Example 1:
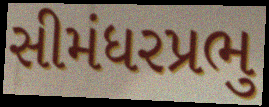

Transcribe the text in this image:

સીમંધરપ્રભુ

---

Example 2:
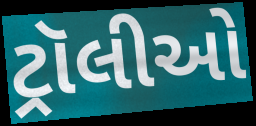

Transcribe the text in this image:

ટ્રૉલીઓ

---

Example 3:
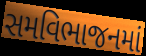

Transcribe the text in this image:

સમવિભાજનમાં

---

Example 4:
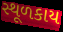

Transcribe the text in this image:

સ્થૂળકાય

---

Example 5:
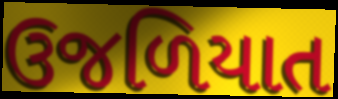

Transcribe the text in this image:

ઉજળિયાત